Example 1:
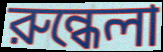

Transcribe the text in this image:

রুন্ধেলা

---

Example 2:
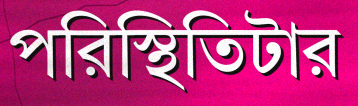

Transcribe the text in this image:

পরিস্থিতিটার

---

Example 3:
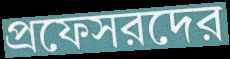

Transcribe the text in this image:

প্রফেসরদের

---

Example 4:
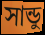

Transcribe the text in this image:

সান্ডু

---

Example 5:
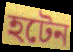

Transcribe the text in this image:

হটেন